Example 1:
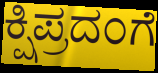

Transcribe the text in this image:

ಕ್ಷಿಪ್ರದಂಗೆ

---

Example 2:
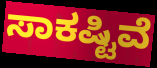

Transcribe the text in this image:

ಸಾಕಷ್ಟಿವೆ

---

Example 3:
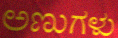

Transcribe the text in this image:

ಅಣುಗಳು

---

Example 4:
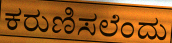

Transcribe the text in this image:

ಕರುಣಿಸಲೆಂದು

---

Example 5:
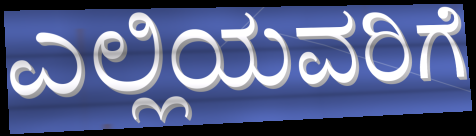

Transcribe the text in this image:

ಎಲ್ಲಿಯವರಿಗೆ